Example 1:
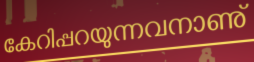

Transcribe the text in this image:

കേറിപ്പറയുന്നവനാണു്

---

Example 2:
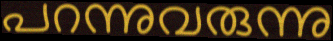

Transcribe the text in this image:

പറന്നുവരുന്നു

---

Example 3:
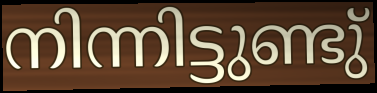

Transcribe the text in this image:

നിന്നിട്ടുണ്ടു്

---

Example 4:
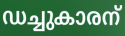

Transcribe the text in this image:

ഡച്ചുകാരന്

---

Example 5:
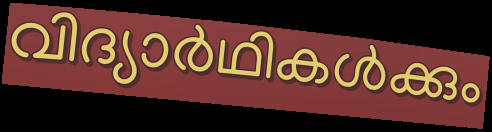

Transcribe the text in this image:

വിദ്യാർഥികൾക്കും